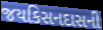
જયકિસનદાસની